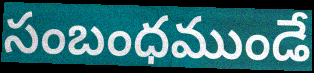
సంబంధముండే